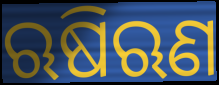
ଋଷିଋଣ